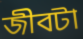
জীবটা